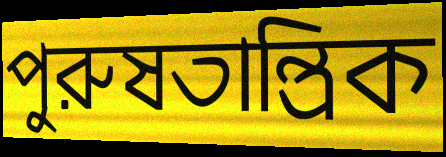
পুৰুষতান্ত্ৰিক